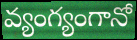
వ్యంగ్యంగానో